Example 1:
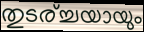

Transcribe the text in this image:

തുടര്ച്ചയായും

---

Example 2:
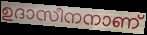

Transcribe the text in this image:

ഉദാസീനനാണ്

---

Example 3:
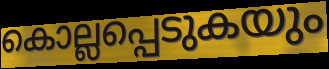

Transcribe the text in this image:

കൊല്ലപ്പെടുകയും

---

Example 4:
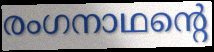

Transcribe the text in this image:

രംഗനാഥന്റെ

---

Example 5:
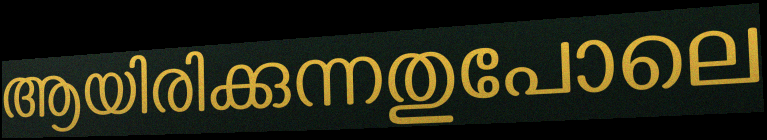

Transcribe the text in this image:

ആയിരിക്കുന്നതുപോലെ